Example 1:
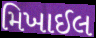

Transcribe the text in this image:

મિખાઈલ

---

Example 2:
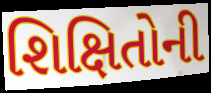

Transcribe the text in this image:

શિક્ષિતોની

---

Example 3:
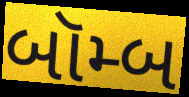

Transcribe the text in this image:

બૉમ્બ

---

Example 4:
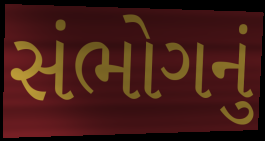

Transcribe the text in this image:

સંભોગનું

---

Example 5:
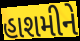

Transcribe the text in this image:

હાશમીને